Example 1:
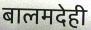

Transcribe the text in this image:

बालमदेही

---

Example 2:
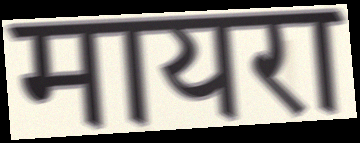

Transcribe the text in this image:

मायरा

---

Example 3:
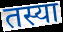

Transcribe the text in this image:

तस्या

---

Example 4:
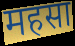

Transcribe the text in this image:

महसा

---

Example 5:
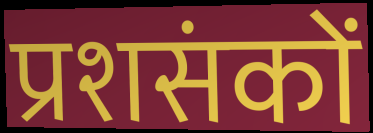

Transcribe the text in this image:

प्रशसंकों